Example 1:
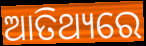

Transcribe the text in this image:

ଆତିଥ୍ୟରେ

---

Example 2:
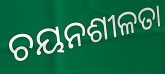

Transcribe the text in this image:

ଚୟନଶୀଳତା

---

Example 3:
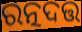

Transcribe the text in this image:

ରତ୍ନଦତ୍ତ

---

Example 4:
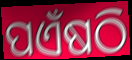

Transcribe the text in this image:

ପଏଁଷଠି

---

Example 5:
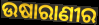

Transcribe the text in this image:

ଉଷାରାଣୀର